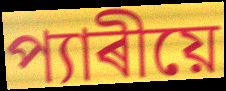
প্যাৰীয়ে